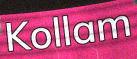
Kollam